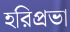
হরিপ্রভা